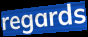
regards